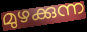
മുഴക്കുന്ന